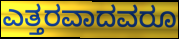
ಎತ್ತರವಾದವರೂ